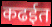
कढईत